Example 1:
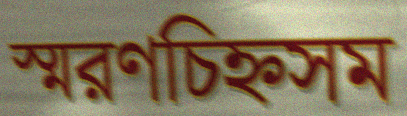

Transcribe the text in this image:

স্মরণচিহ্নসম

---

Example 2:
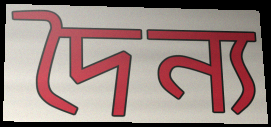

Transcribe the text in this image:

দৈন্য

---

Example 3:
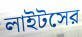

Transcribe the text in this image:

লাইটসের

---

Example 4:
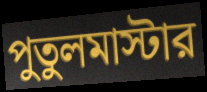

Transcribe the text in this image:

পুতুলমাস্টার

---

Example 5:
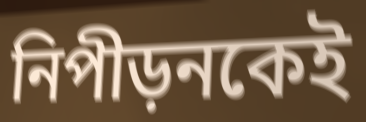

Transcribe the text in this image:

নিপীড়নকেই